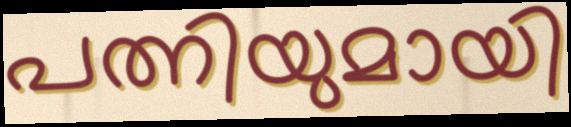
പത്നിയുമായി